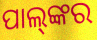
ପାଲ୍‍ଙ୍କର